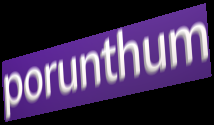
porunthum